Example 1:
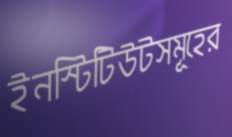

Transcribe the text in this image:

ইনস্টিটিউটসমূহের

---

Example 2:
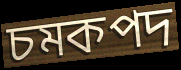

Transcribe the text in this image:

চমকপদ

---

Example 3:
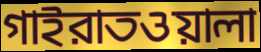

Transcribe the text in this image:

গাইরাতওয়ালা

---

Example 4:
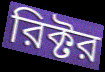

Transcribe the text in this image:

রিক্টর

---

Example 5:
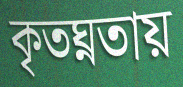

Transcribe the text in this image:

কৃতঘ্নতায়